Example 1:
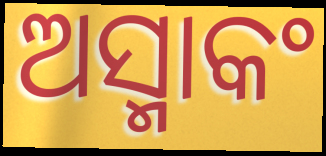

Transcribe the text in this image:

ଅସ୍ମାକଂ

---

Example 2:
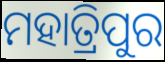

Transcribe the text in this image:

ମହାତ୍ରିପୁର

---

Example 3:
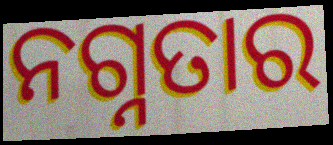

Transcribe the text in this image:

ନଗ୍ନତାର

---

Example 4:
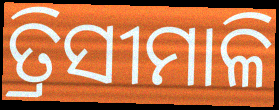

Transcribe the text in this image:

ତ୍ରିସୀମାଳି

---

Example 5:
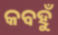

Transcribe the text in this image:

କବହୁଁ